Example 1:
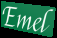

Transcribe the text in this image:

Emel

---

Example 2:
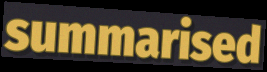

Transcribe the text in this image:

summarised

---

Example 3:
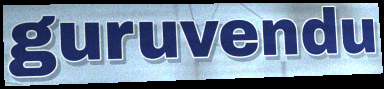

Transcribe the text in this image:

guruvendu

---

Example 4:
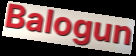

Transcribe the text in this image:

Balogun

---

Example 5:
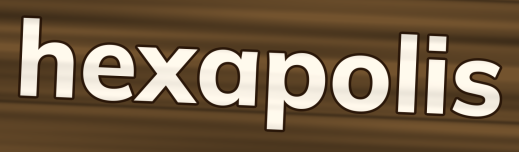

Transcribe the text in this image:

hexapolis